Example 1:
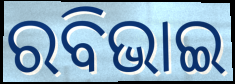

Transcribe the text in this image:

ରବିଭାଇ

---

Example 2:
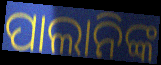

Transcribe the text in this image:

ପାଲାନିଙ୍କ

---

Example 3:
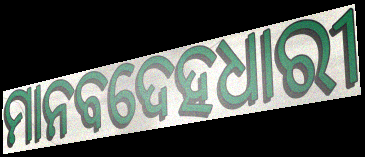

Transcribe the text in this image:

ମାନବଦେହଧାରୀ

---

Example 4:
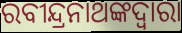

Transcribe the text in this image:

ରବୀନ୍ଦ୍ରନାଥଙ୍କଦ୍ୱାରା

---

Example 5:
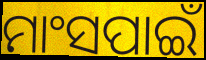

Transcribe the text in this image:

ମାଂସପାଇଁ